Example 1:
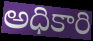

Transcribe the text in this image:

అధికారి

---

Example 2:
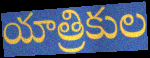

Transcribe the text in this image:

యాత్రికుల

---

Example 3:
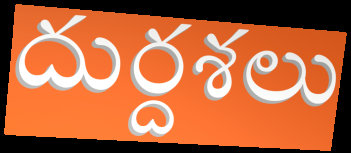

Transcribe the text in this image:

దుర్దశలు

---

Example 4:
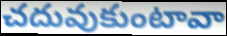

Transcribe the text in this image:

చదువుకుంటావా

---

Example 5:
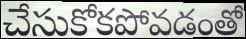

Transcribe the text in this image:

చేసుకోకపోవడంతో